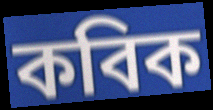
কবিক